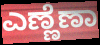
ಎಣ್ಣೆಣಾ